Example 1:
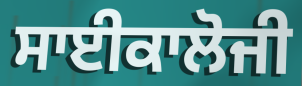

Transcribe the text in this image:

ਸਾਈਕਾਲੋਜੀ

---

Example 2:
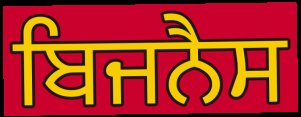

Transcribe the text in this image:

ਬਿਜਨੈਸ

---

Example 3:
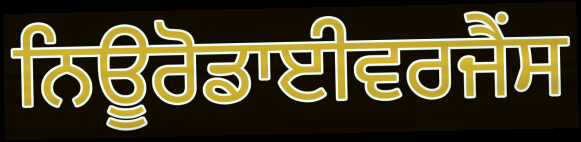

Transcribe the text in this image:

ਨਿਊਰੋਡਾਈਵਰਜੈਂਸ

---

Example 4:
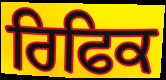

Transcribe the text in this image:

ਰਿਫਿਕ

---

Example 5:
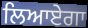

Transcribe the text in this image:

ਲਿਆਏਗਾ